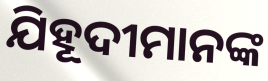
ଯିହୂଦୀମାନଙ୍କ